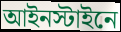
আইনস্টাইনে